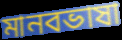
মানবভাষা